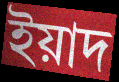
ইয়াদ